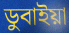
ডুবাইয়া